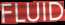
FLUID